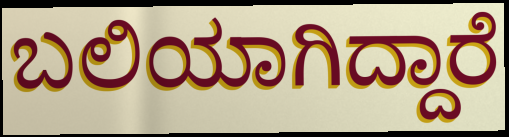
ಬಲಿಯಾಗಿದ್ದಾರೆ